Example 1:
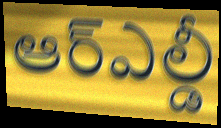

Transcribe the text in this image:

ఆర్ఎల్డీ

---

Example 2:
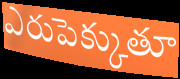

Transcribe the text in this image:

ఎరుపెక్కుతూ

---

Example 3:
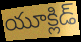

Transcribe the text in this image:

యూక్లిడ్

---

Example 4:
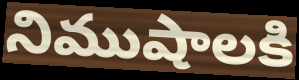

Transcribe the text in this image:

నిముషాలకి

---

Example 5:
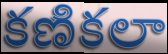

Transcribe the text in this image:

కణికలా